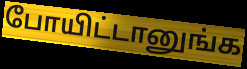
போயிட்டானுங்க